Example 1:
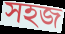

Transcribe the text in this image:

সহজ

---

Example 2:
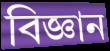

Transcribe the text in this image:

বিজ্ঞান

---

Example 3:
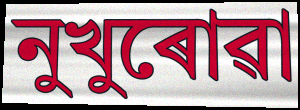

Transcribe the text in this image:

নুখুৰোৱা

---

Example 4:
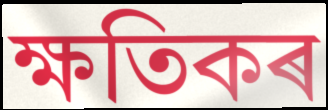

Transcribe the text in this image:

ক্ষতিকৰ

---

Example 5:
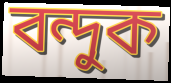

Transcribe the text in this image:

বন্দুক